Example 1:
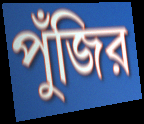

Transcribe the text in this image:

পুঁজির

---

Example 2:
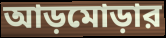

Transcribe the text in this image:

আড়মোড়ার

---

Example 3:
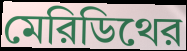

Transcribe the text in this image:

মেরিডিথের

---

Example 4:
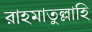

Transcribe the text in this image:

রাহমাতুল্লাহি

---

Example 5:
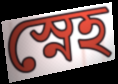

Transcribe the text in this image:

স্নেহ